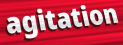
agitation